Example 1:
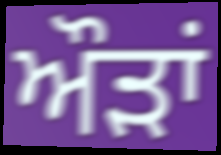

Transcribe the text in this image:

ਔੜਾਂ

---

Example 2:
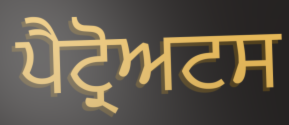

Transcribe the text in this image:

ਪੈਟ੍ਰੋਅਟਸ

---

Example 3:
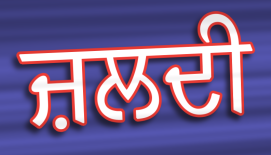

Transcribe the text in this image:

ਜ਼ਲਦੀ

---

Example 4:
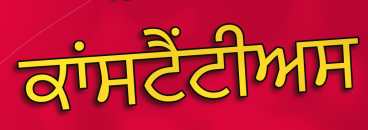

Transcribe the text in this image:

ਕਾਂਸਟੈਂਟੀਅਸ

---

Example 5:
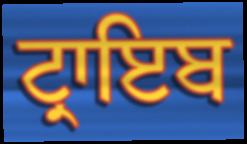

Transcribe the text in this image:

ਟ੍ਰਾਇਬ